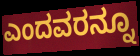
ಎಂದವರನ್ನೂ